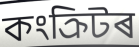
কংক্ৰিটৰ